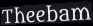
Theebam